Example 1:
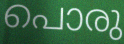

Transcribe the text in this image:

പൊരു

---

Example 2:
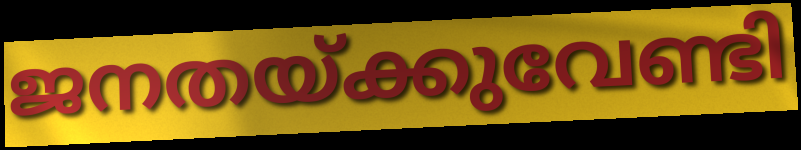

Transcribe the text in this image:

ജനതയ്ക്കുവേണ്ടി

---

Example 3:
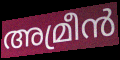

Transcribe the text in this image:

അമ്രീൻ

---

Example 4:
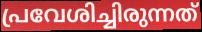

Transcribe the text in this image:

പ്രവേശിച്ചിരുന്നത്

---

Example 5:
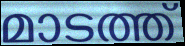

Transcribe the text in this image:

മാടത്ത്